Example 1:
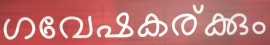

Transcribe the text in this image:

ഗവേഷകര്ക്കും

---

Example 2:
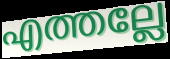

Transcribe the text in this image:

എത്തല്ലേ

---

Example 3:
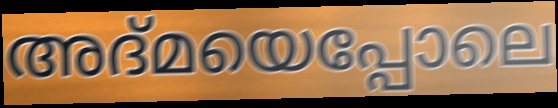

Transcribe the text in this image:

അദ്മയെപ്പോലെ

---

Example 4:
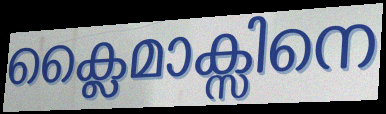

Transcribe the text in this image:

ക്ലൈമാക്സിനെ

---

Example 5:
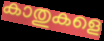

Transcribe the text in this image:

കാതുകളെ